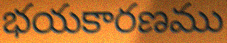
భయకారణము